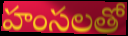
హంసలతో